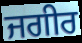
ਜਗੀਰ